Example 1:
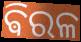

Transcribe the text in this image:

ଵିରଳ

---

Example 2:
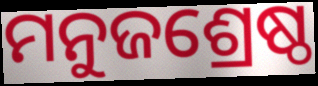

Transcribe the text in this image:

ମନୁଜଶ୍ରେଷ୍ଠ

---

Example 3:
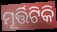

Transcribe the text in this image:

ମୂର୍ତ୍ତିଟିକି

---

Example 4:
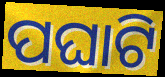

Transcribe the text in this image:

ପଘାଟି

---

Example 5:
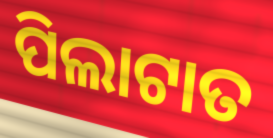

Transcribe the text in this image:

ପିଲାଟାତ